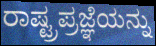
ರಾಷ್ಟ್ರಪ್ರಜ್ಞೆಯನ್ನು